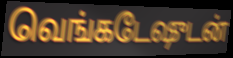
வெங்கடேஷுடன்